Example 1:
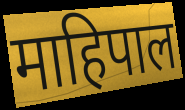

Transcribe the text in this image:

माहिपाल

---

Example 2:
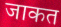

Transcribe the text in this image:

जाकत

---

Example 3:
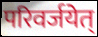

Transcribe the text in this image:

परिवर्जयेत्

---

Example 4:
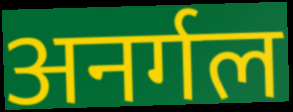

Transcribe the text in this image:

अनर्गल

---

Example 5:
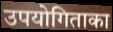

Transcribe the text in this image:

उपयोगिताका